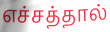
எச்சத்தால்